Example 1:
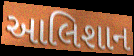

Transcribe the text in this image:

આલિશાન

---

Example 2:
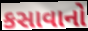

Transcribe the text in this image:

કસાવાનો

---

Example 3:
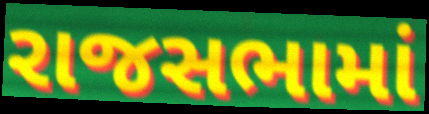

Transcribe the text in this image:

રાજસભામાં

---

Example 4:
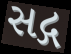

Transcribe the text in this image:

સદ્ગ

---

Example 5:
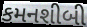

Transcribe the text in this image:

કમનશીબી